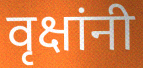
वृक्षांनी